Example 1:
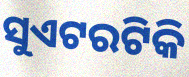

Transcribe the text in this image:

ସୁଏଟରଟିକି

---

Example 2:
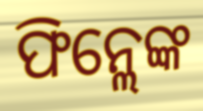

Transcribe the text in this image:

ଫିନ୍ଲେଙ୍କ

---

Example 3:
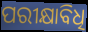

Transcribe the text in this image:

ପରୀକ୍ଷାବିଧି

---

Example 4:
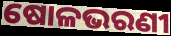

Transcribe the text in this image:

ଷୋଳଭରଣୀ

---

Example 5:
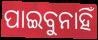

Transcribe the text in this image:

ପାଇବୁନାହିଁ